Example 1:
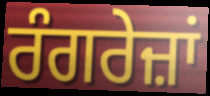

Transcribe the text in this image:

ਰੰਗਰੇਜ਼ਾਂ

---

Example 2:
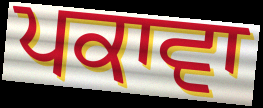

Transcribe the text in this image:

ਪਕਾਵਾ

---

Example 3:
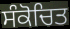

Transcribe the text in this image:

ਸੰਕੋਚਿਤ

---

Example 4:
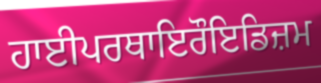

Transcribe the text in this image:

ਹਾਈਪਰਥਾਇਰੌਇਡਿਜ਼ਮ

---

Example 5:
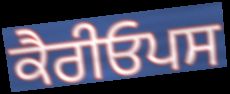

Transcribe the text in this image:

ਕੈਰੀਓਪਸ